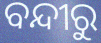
ବନ୍ଦୀରୁ